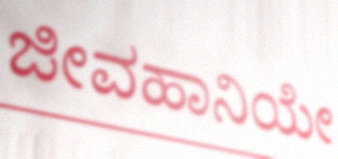
ಜೀವಹಾನಿಯೇ